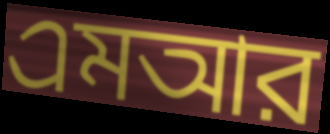
এমআর